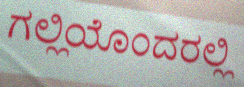
ಗಲ್ಲಿಯೊಂದರಲ್ಲಿ